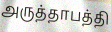
அருத்தாபத்தி